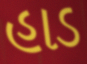
હાડ